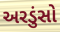
અરડુંસો